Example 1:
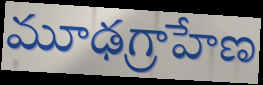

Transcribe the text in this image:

మూఢగ్రాహేణ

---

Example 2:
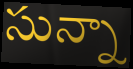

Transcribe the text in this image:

సున్నా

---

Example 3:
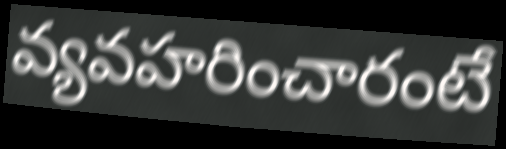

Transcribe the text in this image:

వ్యవహరించారంటే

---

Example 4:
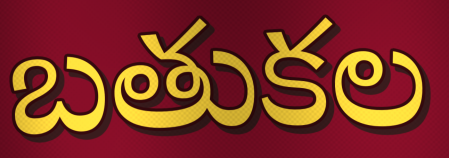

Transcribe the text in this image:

బతుకల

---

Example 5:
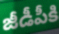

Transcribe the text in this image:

జీడీపీకి